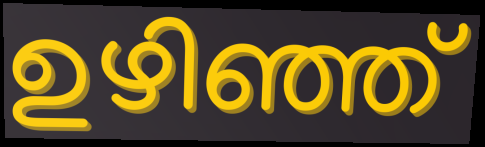
ഉഴിഞ്ഞ്